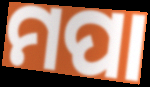
ମପା